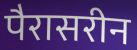
पैरासरीन